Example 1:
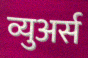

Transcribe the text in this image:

व्युअर्स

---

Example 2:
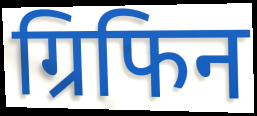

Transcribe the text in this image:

ग्रिफिन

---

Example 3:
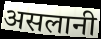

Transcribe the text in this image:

असलानी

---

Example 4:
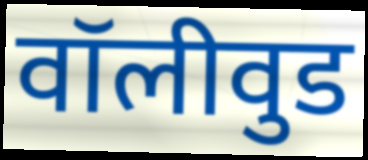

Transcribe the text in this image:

वॉलीवुड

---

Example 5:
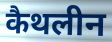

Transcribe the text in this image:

कैथलीन